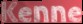
Kenne